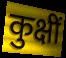
कुक्षीं